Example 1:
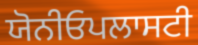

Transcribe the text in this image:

ਯੋਨੀਓਪਲਾਸਟੀ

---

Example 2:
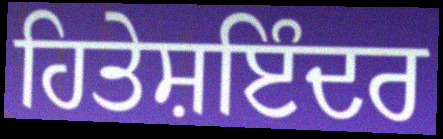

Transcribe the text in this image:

ਹਿਤੇਸ਼ਇੰਦਰ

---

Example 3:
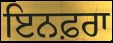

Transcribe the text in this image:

ਇਨਫ਼ਰਾ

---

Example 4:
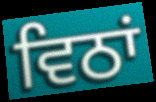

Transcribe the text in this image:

ਵਿਠਾਂ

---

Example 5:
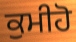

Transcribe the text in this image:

ਕੁਮੀਹੋ